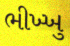
ભીખ્ખુ